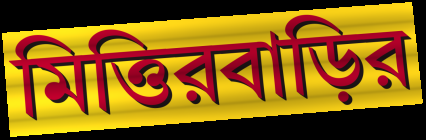
মিত্তিরবাড়ির